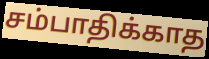
சம்பாதிக்காத